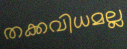
തക്കവിധമല്ല